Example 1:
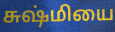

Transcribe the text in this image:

சுஷ்மியை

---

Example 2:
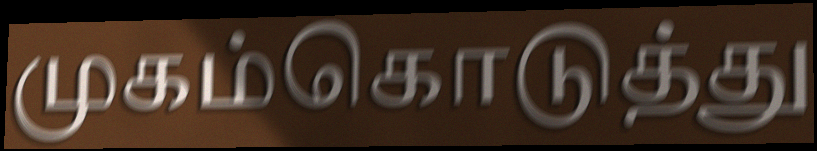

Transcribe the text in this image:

முகம்கொடுத்து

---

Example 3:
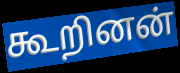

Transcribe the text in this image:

கூறினன்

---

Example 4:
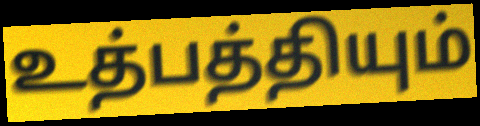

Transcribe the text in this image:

உத்பத்தியும்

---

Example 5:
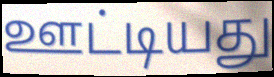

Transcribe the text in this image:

ஊட்டியது